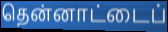
தென்னாட்டைப்